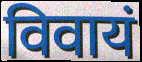
विवायं